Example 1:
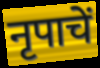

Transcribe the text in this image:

नृपाचें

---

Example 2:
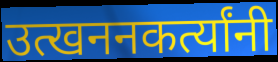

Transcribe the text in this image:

उत्खननकर्त्यांनी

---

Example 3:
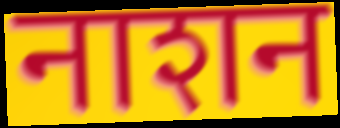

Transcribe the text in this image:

नाशन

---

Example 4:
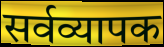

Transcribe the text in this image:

सर्वव्यापक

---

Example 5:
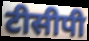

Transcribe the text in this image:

टीसीपी